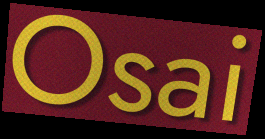
Osai